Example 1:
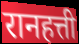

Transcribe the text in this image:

रानहत्ती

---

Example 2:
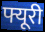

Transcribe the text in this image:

फ्यूरी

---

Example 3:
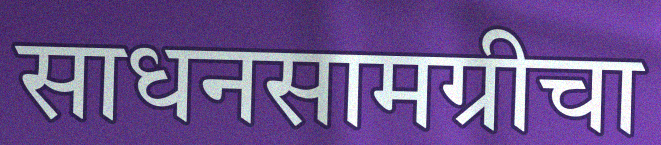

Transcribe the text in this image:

साधनसामग्रीचा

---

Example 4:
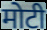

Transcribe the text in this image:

मोटी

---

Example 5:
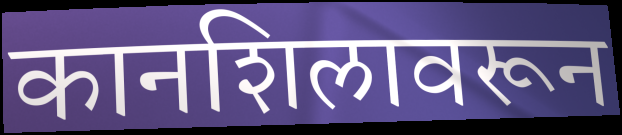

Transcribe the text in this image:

कानशिलावरून